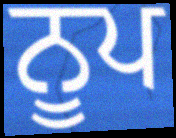
ਨੂਪ